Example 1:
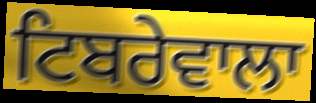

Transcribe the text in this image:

ਟਿਬਰੇਵਾਲਾ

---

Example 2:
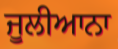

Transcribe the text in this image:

ਜੂਲੀਆਨਾ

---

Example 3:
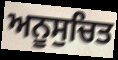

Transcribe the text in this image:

ਅਨੂਸੁਚਿਤ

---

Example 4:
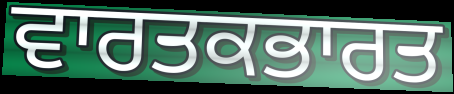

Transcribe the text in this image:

ਵਾਰਤਕਭਾਰਤ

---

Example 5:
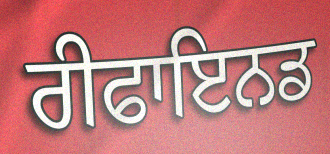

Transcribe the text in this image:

ਰੀਫਾਇਨਡ